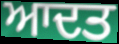
ਆਦਤ